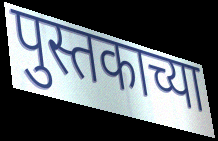
पुस्तकाच्या